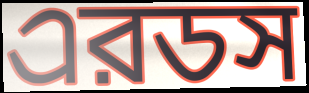
এরডস